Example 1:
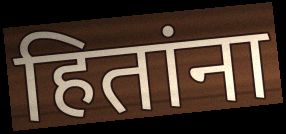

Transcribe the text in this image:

हितांना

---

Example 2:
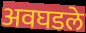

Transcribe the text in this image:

अवघडले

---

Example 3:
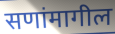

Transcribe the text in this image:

सणांमागील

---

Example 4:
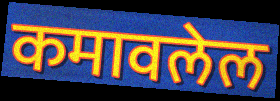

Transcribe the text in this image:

कमावलेल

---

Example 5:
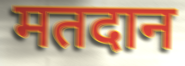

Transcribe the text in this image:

मतदान